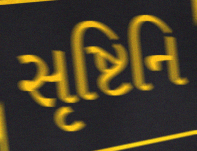
સૃષ્ટિનિ